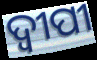
ଦ୍ୱୀପୀ